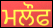
ਮਲੌਫ